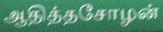
ஆதித்தசோழன்